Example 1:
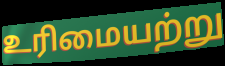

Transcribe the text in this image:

உரிமையற்று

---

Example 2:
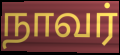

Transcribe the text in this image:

நாவர்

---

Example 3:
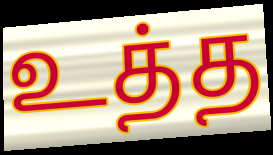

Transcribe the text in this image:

உத்த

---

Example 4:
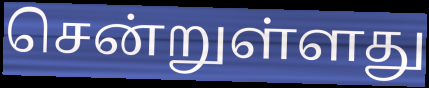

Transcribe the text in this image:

சென்றுள்ளது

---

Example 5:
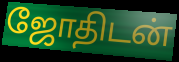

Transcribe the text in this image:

ஜோதிடன்